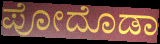
ಪೋದೊಡಾ